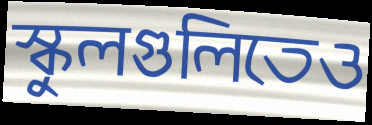
স্কুলগুলিতেও